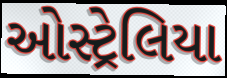
ઓસ્ટ્રેલિયા